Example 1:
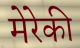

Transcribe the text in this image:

मेरेकी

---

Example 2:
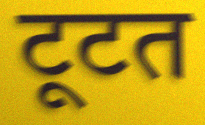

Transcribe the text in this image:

टूटत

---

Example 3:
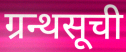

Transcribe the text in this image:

ग्रन्थसूची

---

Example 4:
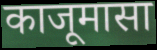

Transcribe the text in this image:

काजूमासा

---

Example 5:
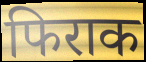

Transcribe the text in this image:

फिराक